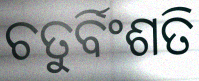
ଚତୁର୍ବିଂଶତି